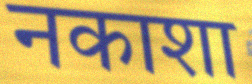
नकाशा